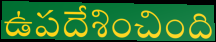
ఉపదేశించింది